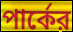
পার্কের